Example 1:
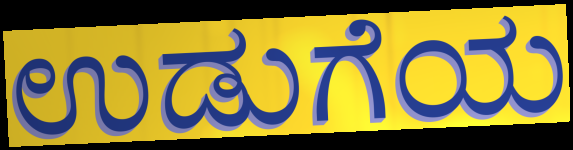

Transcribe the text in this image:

ಉಡುಗೆಯ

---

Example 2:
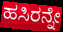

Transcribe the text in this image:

ಹಸಿರನ್ನೇ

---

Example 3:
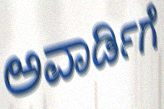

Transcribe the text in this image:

ಅವಾರ್ಡಿಗೆ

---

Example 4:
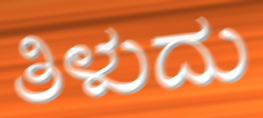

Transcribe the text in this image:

ತಿಳುದು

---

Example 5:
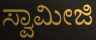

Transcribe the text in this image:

ಸ್ವಾಮೀಜಿ